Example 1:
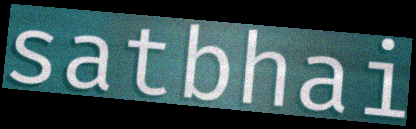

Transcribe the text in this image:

satbhai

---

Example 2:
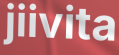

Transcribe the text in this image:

jiivita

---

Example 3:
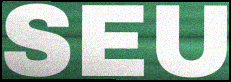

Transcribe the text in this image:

SEU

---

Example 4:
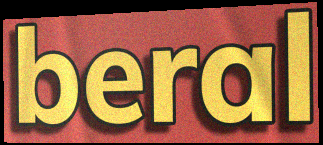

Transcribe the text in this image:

beral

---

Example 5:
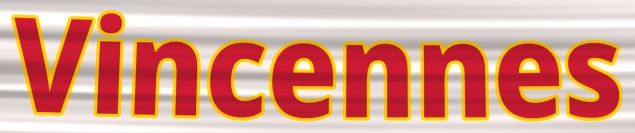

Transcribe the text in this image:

Vincennes